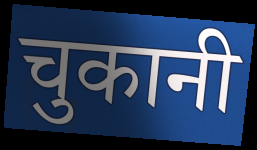
चुकानी